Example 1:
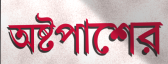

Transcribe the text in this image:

অষ্টপাশের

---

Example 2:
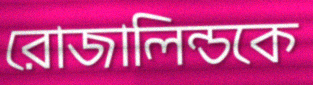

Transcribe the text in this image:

রোজালিন্ডকে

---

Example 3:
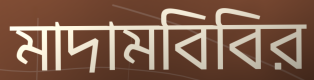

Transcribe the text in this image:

মাদামবিবির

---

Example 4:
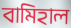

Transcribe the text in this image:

বামিহাল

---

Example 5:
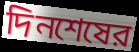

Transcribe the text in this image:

দিনশেষের